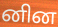
னின